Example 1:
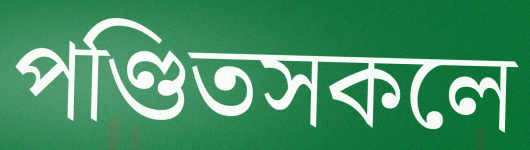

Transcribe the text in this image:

পণ্ডিতসকলে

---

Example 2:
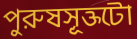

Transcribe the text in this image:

পুৰুষসূক্তটো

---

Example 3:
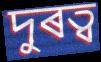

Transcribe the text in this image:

দুৰত্ব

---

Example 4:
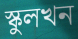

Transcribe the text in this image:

স্কুলখন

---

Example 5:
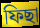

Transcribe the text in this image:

ফিছা